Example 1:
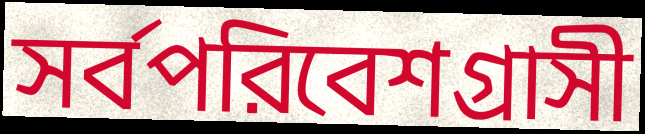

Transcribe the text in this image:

সর্বপরিবেশগ্রাসী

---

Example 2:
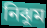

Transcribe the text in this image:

নিঝুম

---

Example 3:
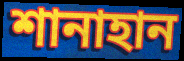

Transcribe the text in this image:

শানাহান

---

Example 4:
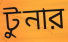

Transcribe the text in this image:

টুনার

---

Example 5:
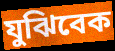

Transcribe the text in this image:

যুঝিবেক